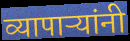
व्यापाऱ्यांनी